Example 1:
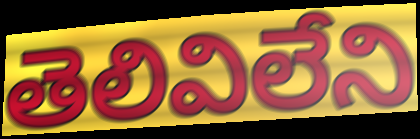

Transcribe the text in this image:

తెలివిలేని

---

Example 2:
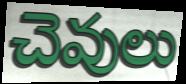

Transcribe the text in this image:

చెవులు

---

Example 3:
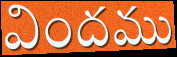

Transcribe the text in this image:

విందము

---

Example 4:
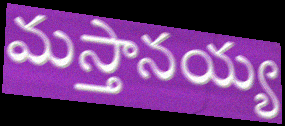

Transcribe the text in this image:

మస్తానయ్య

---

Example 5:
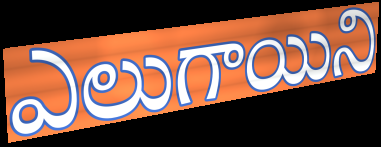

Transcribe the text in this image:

ఎలుగాయిని